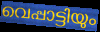
വെപ്പാട്ടിയും